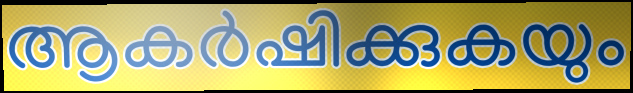
ആകർഷിക്കുകയും